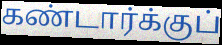
கண்டார்க்குப்